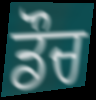
ਡੌਚ